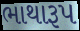
ભાથારૂપ